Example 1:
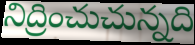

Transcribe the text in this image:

నిద్రించుచున్నది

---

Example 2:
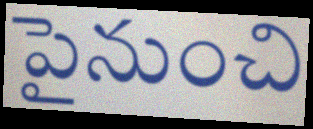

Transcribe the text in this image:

పైనుంచి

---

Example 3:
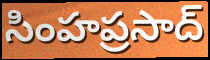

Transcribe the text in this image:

సింహప్రసాద్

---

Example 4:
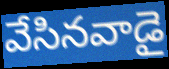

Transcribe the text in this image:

వేసినవాడై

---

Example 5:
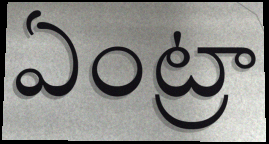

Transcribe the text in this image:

ఏంట్రా